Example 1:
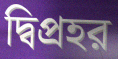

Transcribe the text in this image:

দ্বিপ্রহর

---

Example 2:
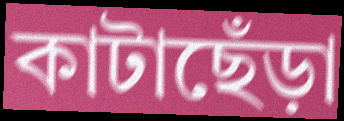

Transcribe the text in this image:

কাটাছেঁড়া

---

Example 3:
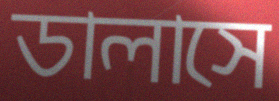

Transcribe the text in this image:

ডালাসে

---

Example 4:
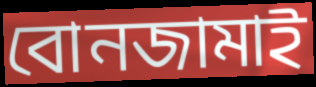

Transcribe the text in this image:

বোনজামাই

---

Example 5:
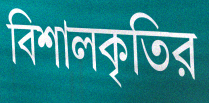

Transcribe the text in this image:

বিশালকৃতির